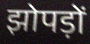
झोपड़ों